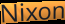
Nixon